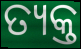
ତ୍ୟକ୍ତ